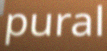
pural